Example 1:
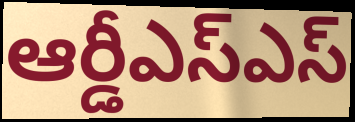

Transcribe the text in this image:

ఆర్డీఎస్ఎస్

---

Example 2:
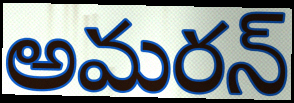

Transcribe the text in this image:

అమరన్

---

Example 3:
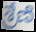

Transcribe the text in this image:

శ్రేణి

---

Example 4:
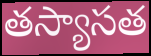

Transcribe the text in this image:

తస్యాసత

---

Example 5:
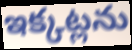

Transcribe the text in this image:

ఇక్కట్లను